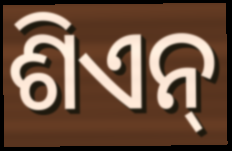
ଶିଏନ୍